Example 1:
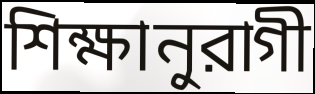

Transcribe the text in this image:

শিক্ষানুরাগী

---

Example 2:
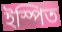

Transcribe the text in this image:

ইস্পিত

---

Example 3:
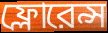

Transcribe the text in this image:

ফ্লোরেন্স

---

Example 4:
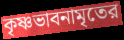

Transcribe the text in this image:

কৃষ্ণভাবনামৃতের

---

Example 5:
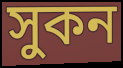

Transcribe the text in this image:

সুকন